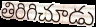
తిరిగిచూడు